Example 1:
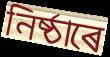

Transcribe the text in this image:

নিষ্ঠাৰে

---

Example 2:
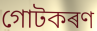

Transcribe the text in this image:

গোটকৰণ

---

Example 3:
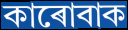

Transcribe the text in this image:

কাৰোবাক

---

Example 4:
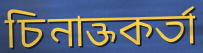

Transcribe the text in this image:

চিনাক্তকৰ্তা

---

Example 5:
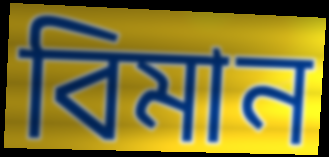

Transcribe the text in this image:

বিমান